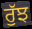
ਰੁੱਝ